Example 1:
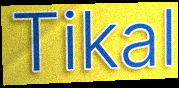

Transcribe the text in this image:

Tikal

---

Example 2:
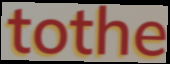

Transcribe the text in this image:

tothe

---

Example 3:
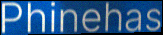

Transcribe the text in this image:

Phinehas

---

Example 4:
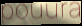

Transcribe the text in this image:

pouura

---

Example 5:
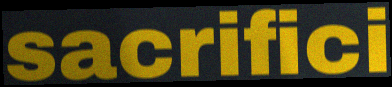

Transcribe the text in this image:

sacrifici